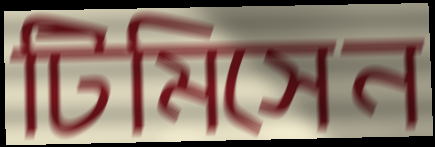
টিমিসেন